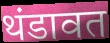
थंडावत